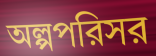
অল্পপরিসর